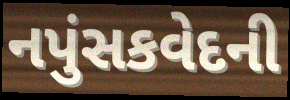
નપુંસકવેદની